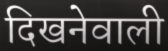
दिखनेवाली